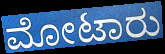
ಮೋಟಾರು